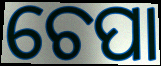
ଚେପା